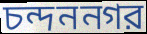
চন্দননগর